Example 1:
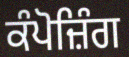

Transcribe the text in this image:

ਕੰਪੋਜ਼ਿੰਗ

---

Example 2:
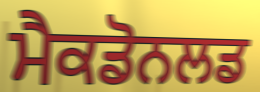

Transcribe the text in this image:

ਮੈਕਡੋਨਲਡ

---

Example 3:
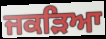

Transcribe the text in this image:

ਜਕੜਿਆ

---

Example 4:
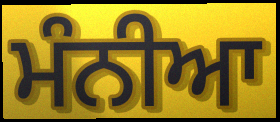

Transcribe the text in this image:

ਮੰਨੀਆ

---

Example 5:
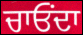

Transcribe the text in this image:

ਚਾਓਂਦਾ